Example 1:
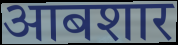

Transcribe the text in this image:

आबशार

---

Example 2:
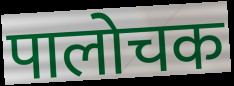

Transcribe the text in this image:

पालोचक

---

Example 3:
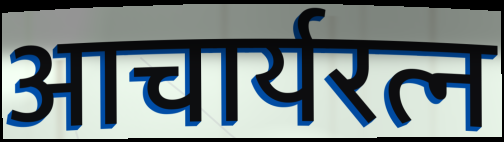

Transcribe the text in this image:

आचार्यरत्न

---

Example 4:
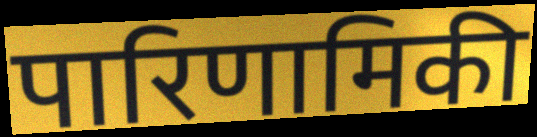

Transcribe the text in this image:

पारिणामिकी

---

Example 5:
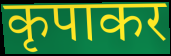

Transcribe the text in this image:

कृपाकर